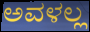
ಅವಳಲ್ಲ